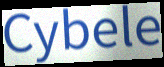
Cybele